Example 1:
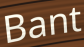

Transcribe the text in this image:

Bant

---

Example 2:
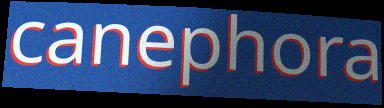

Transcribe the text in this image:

canephora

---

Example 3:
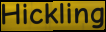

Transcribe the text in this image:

Hickling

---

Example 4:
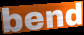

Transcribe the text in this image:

bend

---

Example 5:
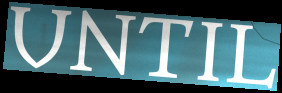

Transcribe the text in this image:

UNTIL